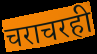
चराचरही